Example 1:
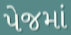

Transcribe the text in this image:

પેજમાં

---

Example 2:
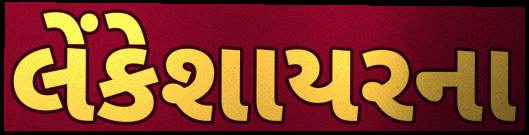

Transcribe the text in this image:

લેંકેશાયરના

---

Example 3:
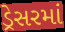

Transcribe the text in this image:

ડ્રેસરમાં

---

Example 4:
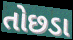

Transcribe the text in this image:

તોછડા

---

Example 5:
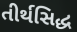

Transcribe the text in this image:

તીર્થસિદ્ધ